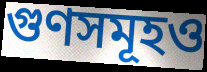
গুণসমূহও